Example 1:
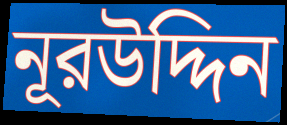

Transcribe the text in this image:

নূরউদ্দিন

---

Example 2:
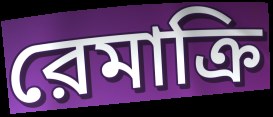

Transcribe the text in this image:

রেমাক্রি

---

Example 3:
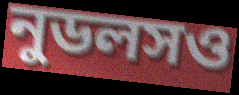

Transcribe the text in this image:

নুডলসও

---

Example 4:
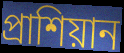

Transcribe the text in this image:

প্রাশিয়ান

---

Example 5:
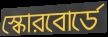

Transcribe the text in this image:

স্কোরবোর্ডে